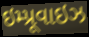
ઇમ્પ્રૂવાઇઝ